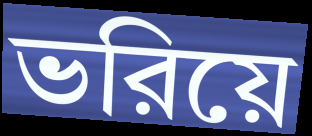
ভরিয়ে